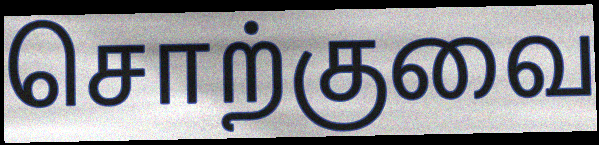
சொற்குவை